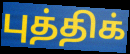
புத்திக்